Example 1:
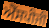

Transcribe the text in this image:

ਐੱਸਪੀਜੀ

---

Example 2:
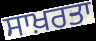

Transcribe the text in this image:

ਸਾਖ਼ਰਤਾ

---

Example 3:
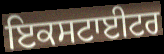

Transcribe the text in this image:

ਇਕਸਟਾਈਟਰ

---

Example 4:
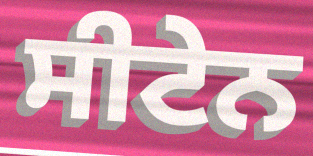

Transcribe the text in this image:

ਸੀਟੇਨ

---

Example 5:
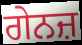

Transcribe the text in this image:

ਗੇਨਜ਼